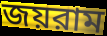
জয়রাম